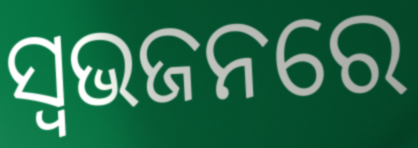
ସ୍ଵଭଜନରେ